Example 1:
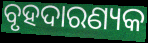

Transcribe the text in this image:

ବୃହଦାରଣ୍ୟକ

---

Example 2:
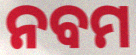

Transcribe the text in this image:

ନବମ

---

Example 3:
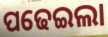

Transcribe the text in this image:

ପଢେଇଲା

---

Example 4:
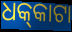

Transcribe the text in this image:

ଧକ୍‌କାଟା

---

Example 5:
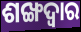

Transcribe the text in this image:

ଶଙ୍ଖଦ୍ୱାର